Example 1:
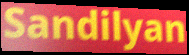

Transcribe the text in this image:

Sandilyan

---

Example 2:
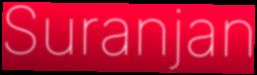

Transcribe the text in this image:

Suranjan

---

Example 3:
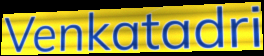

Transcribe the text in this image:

Venkatadri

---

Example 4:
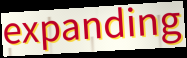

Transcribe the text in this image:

expanding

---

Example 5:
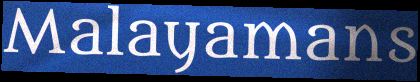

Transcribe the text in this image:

Malayamans